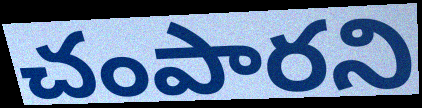
చంపారని